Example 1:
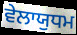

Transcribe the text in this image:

ਵੇਲਾਯੁਧਮ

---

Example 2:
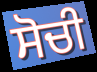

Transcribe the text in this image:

ਸੋਚੀ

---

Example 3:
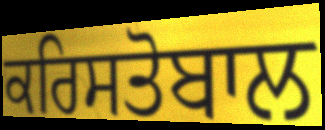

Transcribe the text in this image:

ਕਰਿਸਤੋਬਾਲ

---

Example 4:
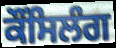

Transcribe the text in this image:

ਕੌਂਸਿਲੰਗ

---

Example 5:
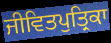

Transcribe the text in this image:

ਜੀਵਿਤਪੁਤ੍ਰਿਕਾ